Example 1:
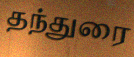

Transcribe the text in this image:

தந்துரை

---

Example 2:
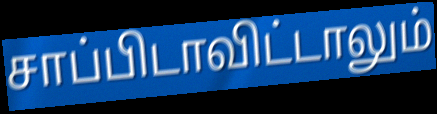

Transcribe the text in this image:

சாப்பிடாவிட்டாலும்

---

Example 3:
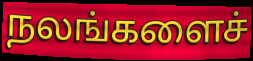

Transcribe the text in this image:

நலங்களைச்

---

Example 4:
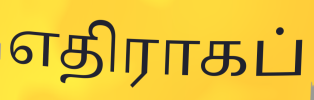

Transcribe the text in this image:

எதிராகப்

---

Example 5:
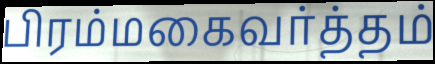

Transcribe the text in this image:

பிரம்மகைவர்த்தம்